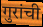
गुरांची